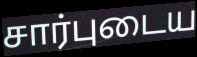
சார்புடைய